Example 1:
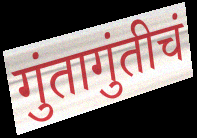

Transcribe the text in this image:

गुंतागुंतीचं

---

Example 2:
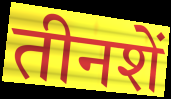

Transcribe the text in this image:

तीनशें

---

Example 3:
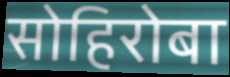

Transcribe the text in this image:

सोहिरोबा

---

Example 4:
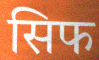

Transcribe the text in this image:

सिफ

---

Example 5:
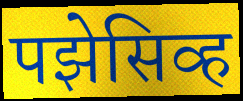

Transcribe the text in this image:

पझेसिव्ह